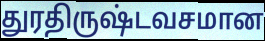
துரதிருஷ்டவசமான